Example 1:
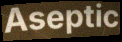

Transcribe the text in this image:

Aseptic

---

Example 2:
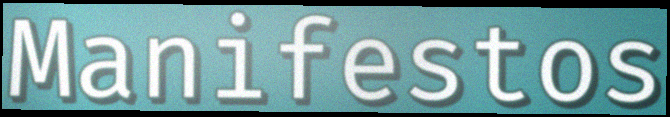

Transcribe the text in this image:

Manifestos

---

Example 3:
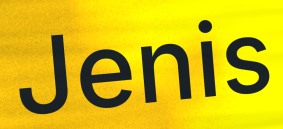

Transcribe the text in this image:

Jenis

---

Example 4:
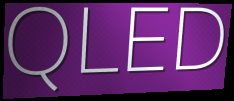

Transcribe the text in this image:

QLED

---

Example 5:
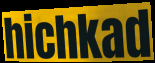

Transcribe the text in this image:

hichkad